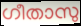
ഗീതാസു